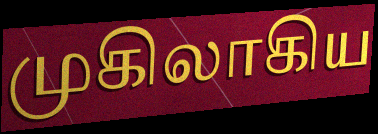
முகிலாகிய